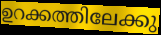
ഉറക്കത്തിലേക്കു